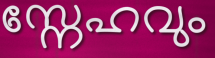
സ്നേഹവും